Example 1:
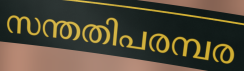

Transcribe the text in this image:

സന്തതിപരമ്പര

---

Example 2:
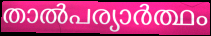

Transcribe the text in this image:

താൽപര്യാർത്ഥം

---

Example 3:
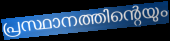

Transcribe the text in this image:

പ്രസ്ഥാനത്തിന്റെയും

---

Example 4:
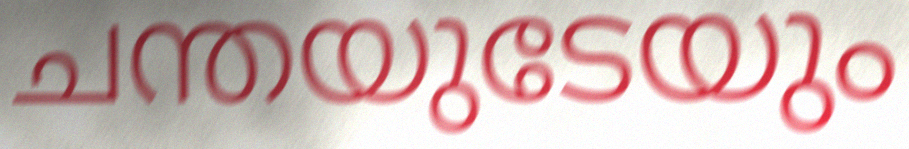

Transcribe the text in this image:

ചന്തയുടേയും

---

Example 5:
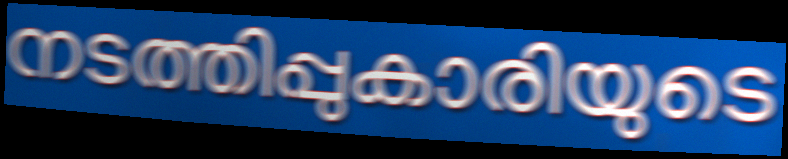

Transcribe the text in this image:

നടത്തിപ്പുകാരിയുടെ